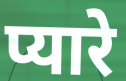
प्यारे